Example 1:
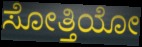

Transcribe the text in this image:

ಸೋತ್ತಿಯೋ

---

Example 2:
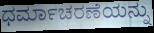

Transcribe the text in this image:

ಧರ್ಮಾಚರಣೆಯನ್ನು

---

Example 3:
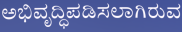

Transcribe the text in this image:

ಅಭಿವೃದ್ಧಿಪಡಿಸಲಾಗಿರುವ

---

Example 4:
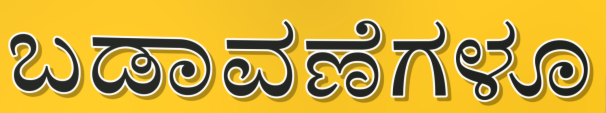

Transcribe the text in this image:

ಬಡಾವಣೆಗಳೂ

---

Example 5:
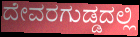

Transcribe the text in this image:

ದೇವರಗುಡ್ಡದಲ್ಲಿ